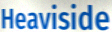
Heaviside